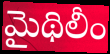
మైథిలీం